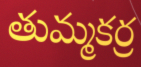
తుమ్మకర్ర